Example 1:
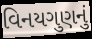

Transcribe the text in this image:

વિનયગુણનું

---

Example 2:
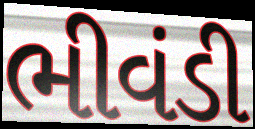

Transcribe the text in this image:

ભીવંડી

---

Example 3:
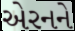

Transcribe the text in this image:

એરનને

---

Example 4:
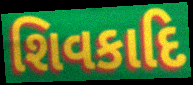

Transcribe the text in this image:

શિવકાદિ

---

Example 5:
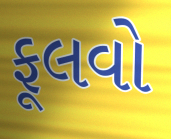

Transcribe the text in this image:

ફૂલવો